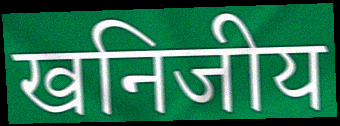
खनिजीय